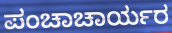
ಪಂಚಾಚಾರ್ಯರ